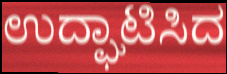
ಉದ್ಘಾಟಿಸಿದ